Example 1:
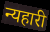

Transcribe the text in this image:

न्यहारी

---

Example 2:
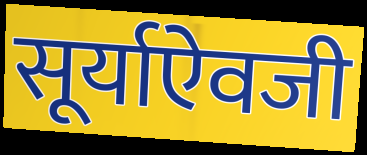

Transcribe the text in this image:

सूर्याऐवजी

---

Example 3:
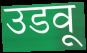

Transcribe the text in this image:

उडवू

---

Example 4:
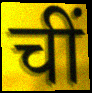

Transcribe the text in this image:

चीं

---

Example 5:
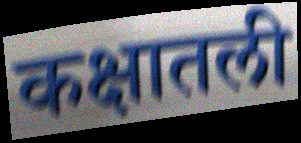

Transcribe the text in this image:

कक्षातली